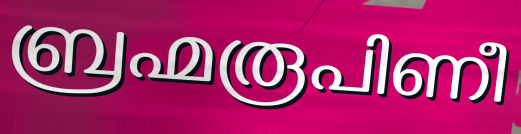
ബ്രഹ്മരൂപിണീ